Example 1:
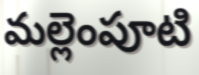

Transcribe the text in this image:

మల్లెంపూటి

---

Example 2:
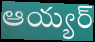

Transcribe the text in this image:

ఆయ్యర్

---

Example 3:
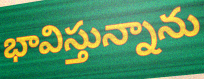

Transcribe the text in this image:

భావిస్తున్నాను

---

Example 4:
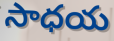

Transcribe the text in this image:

సాధయ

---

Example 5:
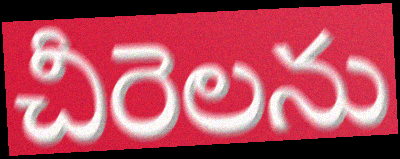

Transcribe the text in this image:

చీరెలను